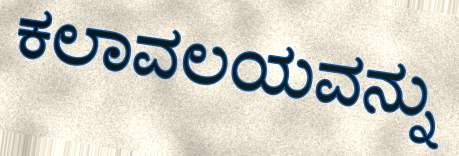
ಕಲಾವಲಯವನ್ನು